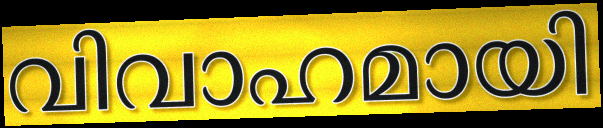
വിവാഹമായി